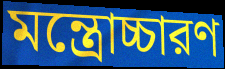
মন্ত্রোচ্চারণ